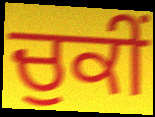
ਚੁਕੀਂ